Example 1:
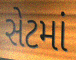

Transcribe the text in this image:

સેટમાં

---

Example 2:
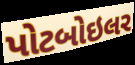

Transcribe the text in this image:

પોટબોઇલર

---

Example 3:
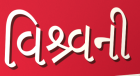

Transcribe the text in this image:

વિશ્ર્વની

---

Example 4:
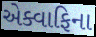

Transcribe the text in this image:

એક્વાફિના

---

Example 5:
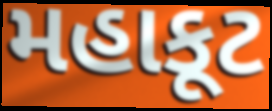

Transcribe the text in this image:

મહાકૂટ